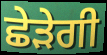
ਛੇੜੇਗੀ